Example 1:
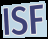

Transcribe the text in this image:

ISF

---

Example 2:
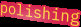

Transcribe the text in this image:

polishing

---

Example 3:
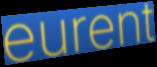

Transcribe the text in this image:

eurent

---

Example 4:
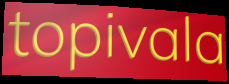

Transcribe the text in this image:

topivala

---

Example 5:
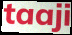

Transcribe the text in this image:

taaji